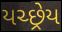
યચ્છ્રેય